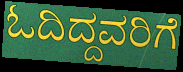
ಓದಿದ್ದವರಿಗೆ